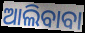
ଆଲିବାବା